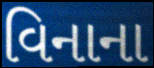
વિનાના